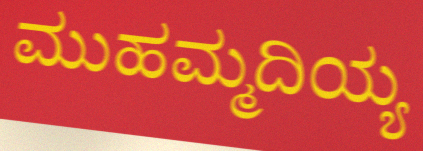
ಮುಹಮ್ಮದಿಯ್ಯ